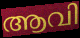
ആവി